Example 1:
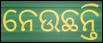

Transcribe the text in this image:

ନେଉଛନ୍ତି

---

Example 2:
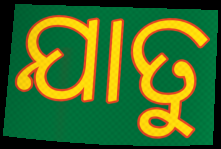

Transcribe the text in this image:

ଯାତୁ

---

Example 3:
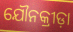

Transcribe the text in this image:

ଯୌନକ୍ରୀଡ଼ା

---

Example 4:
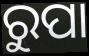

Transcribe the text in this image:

ରୁପା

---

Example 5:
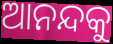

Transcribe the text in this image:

ଆନନ୍ଦକୁ